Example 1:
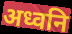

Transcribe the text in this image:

अध्वनि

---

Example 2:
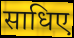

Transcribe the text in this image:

साधिए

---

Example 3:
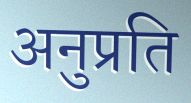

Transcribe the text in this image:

अनुप्रति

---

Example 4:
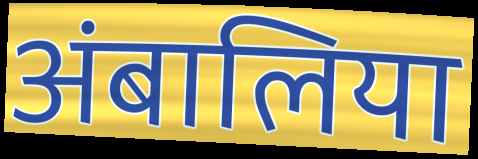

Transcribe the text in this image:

अंबालिया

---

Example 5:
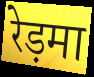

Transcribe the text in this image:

रेड़मा